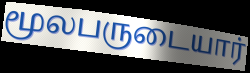
மூலபருடையார்